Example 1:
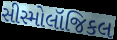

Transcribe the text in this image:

સીસ્મોલૉજિકલ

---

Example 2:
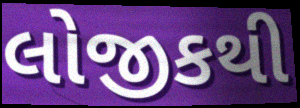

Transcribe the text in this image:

લોજીકથી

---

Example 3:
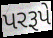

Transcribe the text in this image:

પરરૂપે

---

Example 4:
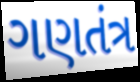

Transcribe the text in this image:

ગણતંત્ર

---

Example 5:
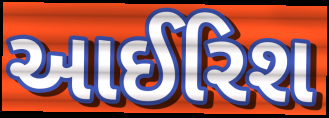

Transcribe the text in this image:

આઈરિશ